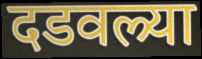
दडवल्या